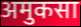
अमुकसा